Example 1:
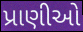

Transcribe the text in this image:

પ્રાણીઓ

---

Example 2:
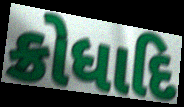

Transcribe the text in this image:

ક્રોધાદિ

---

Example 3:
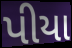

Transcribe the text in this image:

પીયા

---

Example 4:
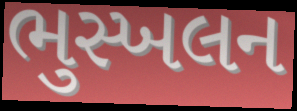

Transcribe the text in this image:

ભુસ્ખલન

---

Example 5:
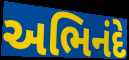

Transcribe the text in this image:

અભિનંદે